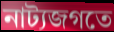
নাট্যজগতে